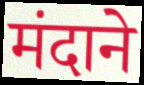
मंदाने